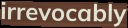
irrevocably